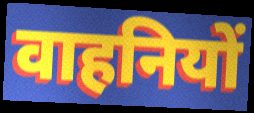
वाहनियों